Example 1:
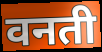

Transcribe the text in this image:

वनती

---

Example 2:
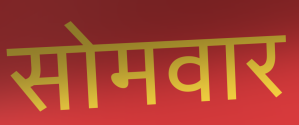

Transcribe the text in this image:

सोमवार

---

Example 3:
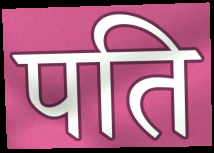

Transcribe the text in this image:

पति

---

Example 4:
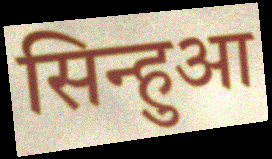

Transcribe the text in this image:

सिन्हुआ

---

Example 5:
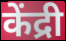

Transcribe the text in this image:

केंद्री